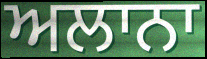
ਅਲਾਨਾ